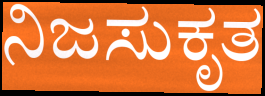
ನಿಜಸುಕೃತ